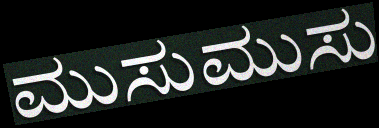
ಮುಸುಮುಸು